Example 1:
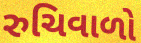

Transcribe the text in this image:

રુચિવાળો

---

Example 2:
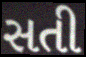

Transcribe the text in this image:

સતી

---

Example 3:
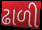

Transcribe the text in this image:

ઢાળી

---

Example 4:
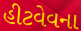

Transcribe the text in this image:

હીટવેવના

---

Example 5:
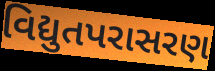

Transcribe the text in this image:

વિદ્યુતપરાસરણ